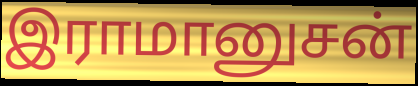
இராமானுசன்